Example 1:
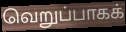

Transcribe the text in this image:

வெறுப்பாகக்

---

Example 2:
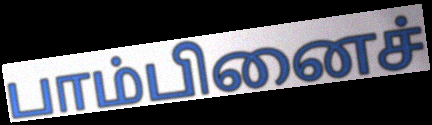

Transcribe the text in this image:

பாம்பினைச்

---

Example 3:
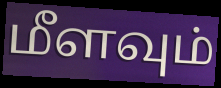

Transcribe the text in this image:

மீளவும்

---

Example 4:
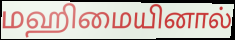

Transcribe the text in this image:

மஹிமையினால்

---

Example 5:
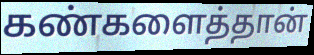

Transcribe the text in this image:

கண்களைத்தான்